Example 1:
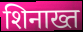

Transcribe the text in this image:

शिनाख्त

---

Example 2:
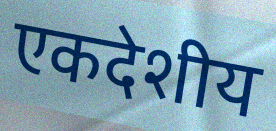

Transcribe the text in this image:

एकदेशीय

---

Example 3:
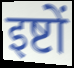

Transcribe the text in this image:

इष्टों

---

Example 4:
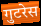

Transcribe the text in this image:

गुटरेस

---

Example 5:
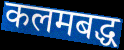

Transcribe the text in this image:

कलमबद्ध